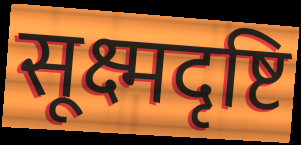
सूक्ष्मदृष्टि